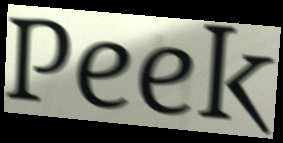
Peek